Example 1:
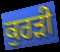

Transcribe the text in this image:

ਕੁਰੜੀ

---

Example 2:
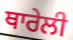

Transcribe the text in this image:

ਥਾਰੇਲੀ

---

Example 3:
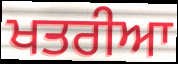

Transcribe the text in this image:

ਖਤਰੀਆ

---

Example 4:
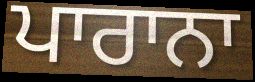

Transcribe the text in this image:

ਪਾਰਾਨਾ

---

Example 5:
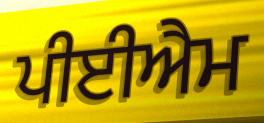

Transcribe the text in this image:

ਪੀਈਐਮ